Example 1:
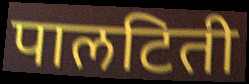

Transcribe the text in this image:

पालटिती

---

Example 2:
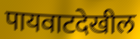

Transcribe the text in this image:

पायवाटदेखील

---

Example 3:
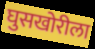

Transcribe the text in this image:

घुसखोरीला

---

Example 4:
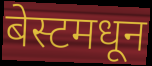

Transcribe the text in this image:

बेस्टमधून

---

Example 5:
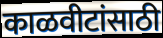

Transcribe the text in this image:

काळवीटांसाठी